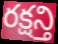
రక్షన్తి